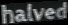
halved